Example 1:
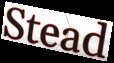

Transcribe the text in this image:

Stead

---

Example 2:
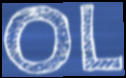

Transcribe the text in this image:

OL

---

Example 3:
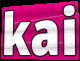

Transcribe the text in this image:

kai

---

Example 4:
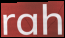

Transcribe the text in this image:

rah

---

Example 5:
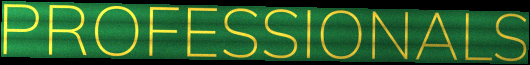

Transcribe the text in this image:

PROFESSIONALS